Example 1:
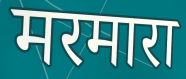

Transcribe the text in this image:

मरमारा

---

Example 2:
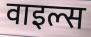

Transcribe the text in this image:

वाइल्स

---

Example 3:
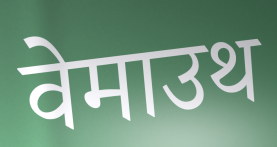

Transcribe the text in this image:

वेमाउथ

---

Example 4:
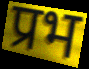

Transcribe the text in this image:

प्रभ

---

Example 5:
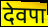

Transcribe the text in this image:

देवपा